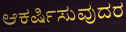
ಆಕರ್ಷಿಸುವುದರ